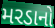
મરડાનો